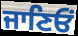
ਜਾਣਿਓਂ